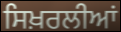
ਸਿਖ਼ਰਲੀਆਂ